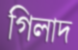
গিলাদ